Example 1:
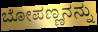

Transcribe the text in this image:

ಬೋಪಣ್ಣನನ್ನು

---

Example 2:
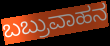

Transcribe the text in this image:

ಬಬ್ರುವಾಹನ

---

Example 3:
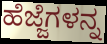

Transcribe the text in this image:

ಹೆಜ್ಜೆಗಳನ್ನ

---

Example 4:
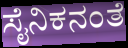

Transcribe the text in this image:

ಸೈನಿಕನಂತೆ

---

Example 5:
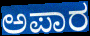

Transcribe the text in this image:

ಅಪಾರ